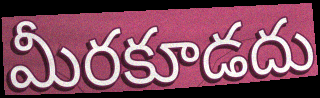
మీరకూడదు